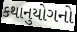
કથાનુયોગનો